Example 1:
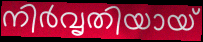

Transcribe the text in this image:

നിർവൃതിയായ്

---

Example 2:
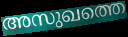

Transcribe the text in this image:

അസുഖത്തെ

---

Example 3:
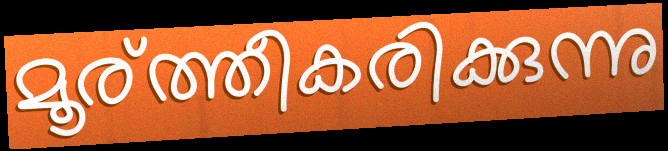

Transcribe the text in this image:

മൂര്ത്തീകരിക്കുന്നു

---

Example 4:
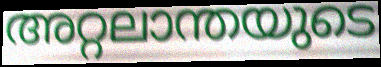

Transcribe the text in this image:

അറ്റലാന്തയുടെ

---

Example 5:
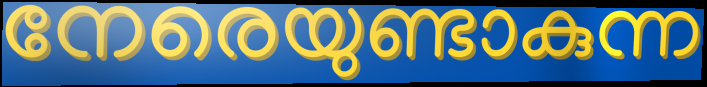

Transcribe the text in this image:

നേരെയുണ്ടാകുന്ന